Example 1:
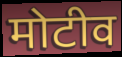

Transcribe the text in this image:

मोटीव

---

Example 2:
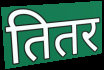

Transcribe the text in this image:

तितर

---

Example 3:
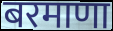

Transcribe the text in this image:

बरमाणा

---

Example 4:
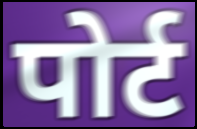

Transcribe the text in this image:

पोर्ट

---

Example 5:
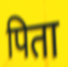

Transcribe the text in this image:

पिता